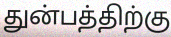
துன்பத்திற்கு